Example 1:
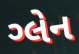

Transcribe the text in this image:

ગ્લેન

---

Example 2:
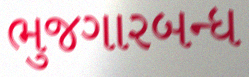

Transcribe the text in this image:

ભુજગારબન્ધ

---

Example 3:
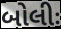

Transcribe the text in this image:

બોલીઃ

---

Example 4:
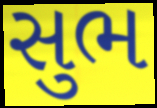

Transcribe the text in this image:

સુભ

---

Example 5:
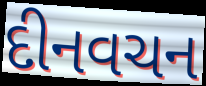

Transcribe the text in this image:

દીનવચન